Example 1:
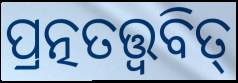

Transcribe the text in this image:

ପ୍ରତ୍ନତତ୍ତ୍ଵବିତ୍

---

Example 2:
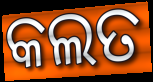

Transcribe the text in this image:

କଲତ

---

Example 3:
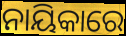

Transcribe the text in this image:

ନାୟିକାରେ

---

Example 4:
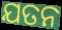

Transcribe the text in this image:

ଯତନ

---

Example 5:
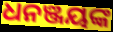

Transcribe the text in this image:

ଧନଞ୍ଜୟଙ୍କ